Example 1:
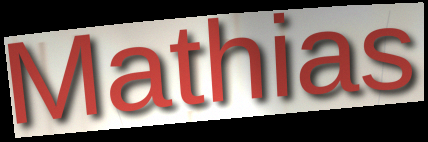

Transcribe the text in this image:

Mathias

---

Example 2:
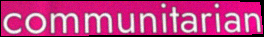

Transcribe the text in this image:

communitarian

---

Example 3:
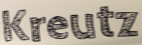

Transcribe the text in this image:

Kreutz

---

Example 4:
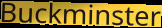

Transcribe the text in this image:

Buckminster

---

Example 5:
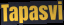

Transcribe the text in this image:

Tapasvi